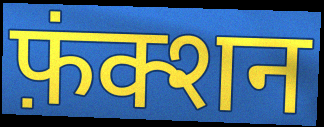
फ़ंक्शन